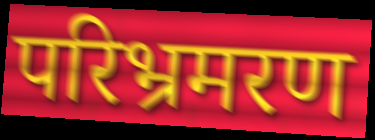
परिभ्रमरण